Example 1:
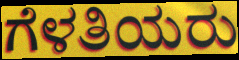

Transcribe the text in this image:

ಗೆಳತಿಯರು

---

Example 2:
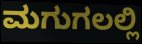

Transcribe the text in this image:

ಮಗುಗಲಲ್ಲಿ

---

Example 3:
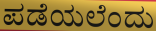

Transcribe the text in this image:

ಪಡೆಯಲೆಂದು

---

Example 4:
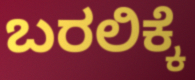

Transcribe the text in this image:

ಬರಲಿಕ್ಕೆ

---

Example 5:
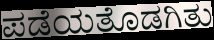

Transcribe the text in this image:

ಪಡೆಯತೊಡಗಿತು